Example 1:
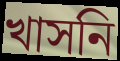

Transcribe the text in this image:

খাসনি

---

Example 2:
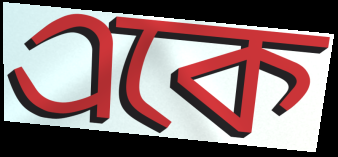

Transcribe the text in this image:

একে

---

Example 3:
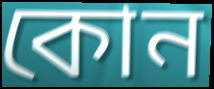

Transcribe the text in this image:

কোন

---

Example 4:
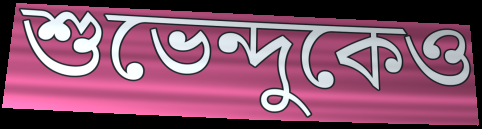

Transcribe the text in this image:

শুভেন্দুকেও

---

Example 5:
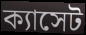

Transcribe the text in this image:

ক্যাসেট